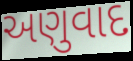
અણુવાદ